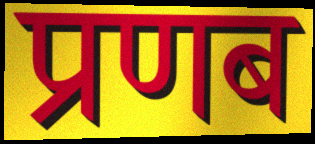
प्रणब